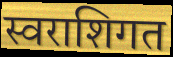
स्वराशिगत